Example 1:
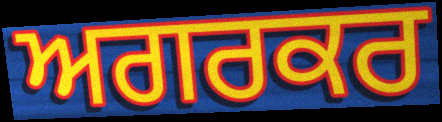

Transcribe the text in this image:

ਅਗਰਕਰ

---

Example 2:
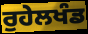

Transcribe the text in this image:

ਰੁਹੇਲਖੰਡ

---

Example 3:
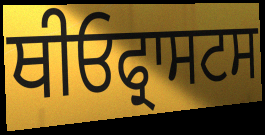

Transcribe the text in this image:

ਥੀਓਫ੍ਰਾਸਟਸ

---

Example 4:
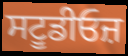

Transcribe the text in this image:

ਸਟੂਡੀਓਜ਼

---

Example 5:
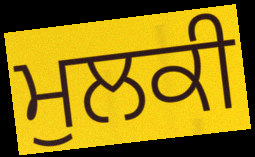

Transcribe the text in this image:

ਮੁਲਕੀ